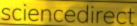
sciencedirect